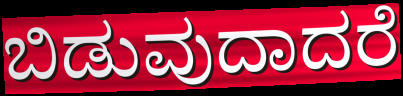
ಬಿಡುವುದಾದರೆ